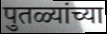
पुतळ्यांच्या